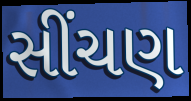
સીંચણ